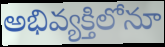
అభివ్యక్తిలోనూ